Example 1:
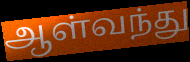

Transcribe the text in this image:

ஆள்வந்து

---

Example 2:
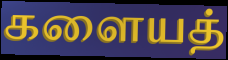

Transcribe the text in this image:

களையத்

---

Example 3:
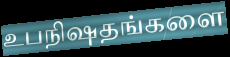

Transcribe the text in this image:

உபநிஷதங்களை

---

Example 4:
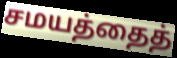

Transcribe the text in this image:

சமயத்தைத்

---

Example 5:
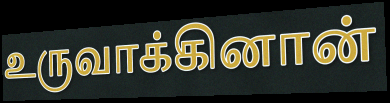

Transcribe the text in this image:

உருவாக்கினான்